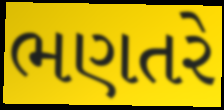
ભણતરે